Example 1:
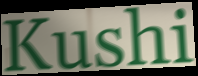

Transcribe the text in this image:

Kushi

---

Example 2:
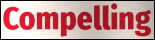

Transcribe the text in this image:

Compelling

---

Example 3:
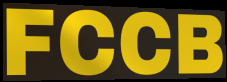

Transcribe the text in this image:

FCCB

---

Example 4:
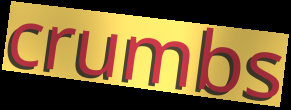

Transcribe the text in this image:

crumbs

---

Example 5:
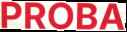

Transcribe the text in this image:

PROBA